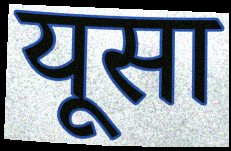
यूसा